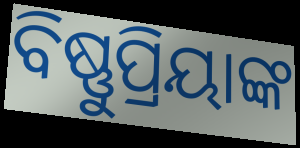
ବିଷ୍ଣୁପ୍ରିୟାଙ୍କ